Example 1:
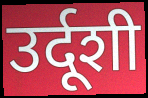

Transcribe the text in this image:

उर्दूशी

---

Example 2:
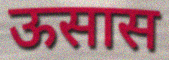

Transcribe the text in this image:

ऊसास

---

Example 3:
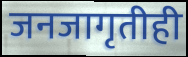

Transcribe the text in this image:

जनजागृतीही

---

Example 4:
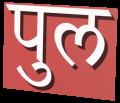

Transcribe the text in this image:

पुल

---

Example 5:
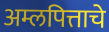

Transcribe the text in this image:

अम्लपित्ताचे